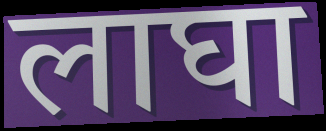
लाघा